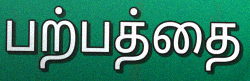
பற்பத்தை